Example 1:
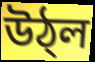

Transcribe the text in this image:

উঠ্ল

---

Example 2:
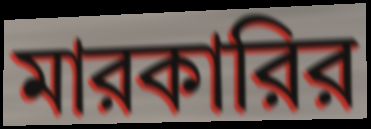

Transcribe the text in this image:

মারকারির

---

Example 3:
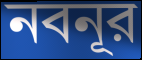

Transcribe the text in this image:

নবনূর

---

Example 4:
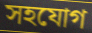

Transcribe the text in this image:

সহযোগ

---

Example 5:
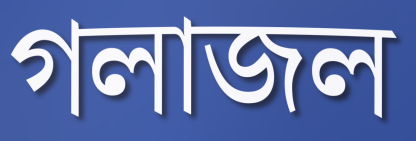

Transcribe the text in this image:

গলাজল